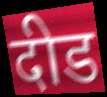
दीड